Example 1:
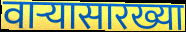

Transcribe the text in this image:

वाऱ्यासारख्या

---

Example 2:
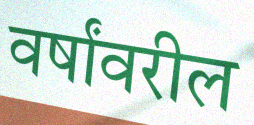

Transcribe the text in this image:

वर्षांवरील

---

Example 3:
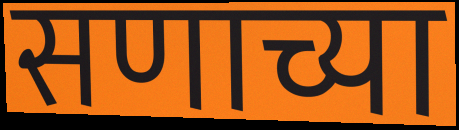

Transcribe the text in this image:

सणाच्या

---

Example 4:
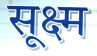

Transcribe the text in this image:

सूक्ष्म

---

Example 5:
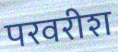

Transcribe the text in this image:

परवरीश